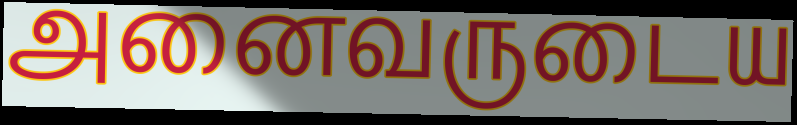
அனைவருடைய